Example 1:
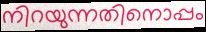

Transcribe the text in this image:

നിറയുന്നതിനൊപ്പം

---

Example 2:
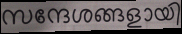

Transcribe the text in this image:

സന്ദേശങ്ങളായി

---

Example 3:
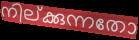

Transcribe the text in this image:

നില്ക്കുന്നതോ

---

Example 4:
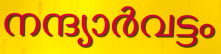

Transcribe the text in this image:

നന്ദ്യാർവട്ടം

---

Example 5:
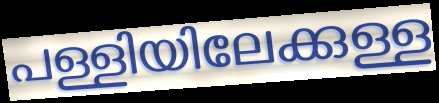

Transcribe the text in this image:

പള്ളിയിലേക്കുള്ള